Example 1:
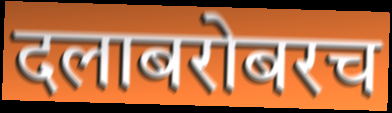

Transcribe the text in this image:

दलाबरोबरच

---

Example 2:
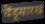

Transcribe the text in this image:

चेंडूसारखं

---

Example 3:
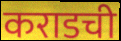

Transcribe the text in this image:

कराडची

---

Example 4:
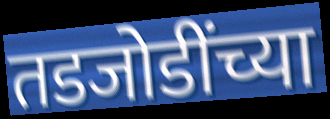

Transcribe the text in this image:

तडजोडींच्या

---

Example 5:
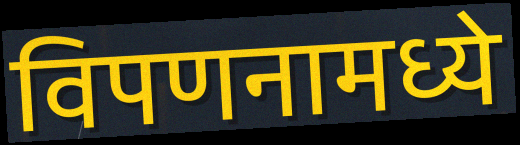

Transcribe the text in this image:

विपणनामध्ये